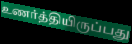
உணர்த்தியிருப்பது